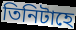
তিনিটাহে